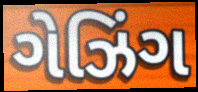
ગેઝિંગ